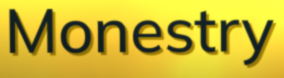
Monestry